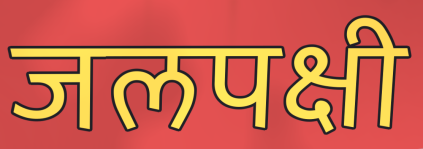
जलपक्षी